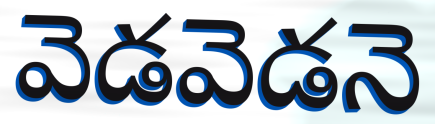
వెడవెడనె